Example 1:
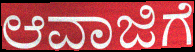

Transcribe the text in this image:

ಆವಾಜಿಗೆ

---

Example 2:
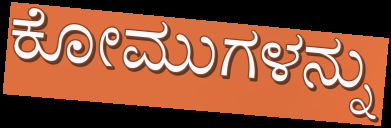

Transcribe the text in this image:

ಕೋಮುಗಳನ್ನು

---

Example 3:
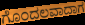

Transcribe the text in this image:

ಗೊಂದಲವಾದಾಗ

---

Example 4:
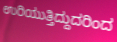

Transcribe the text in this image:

ಉರಿಯುತ್ತಿದ್ದುದರಿಂದ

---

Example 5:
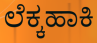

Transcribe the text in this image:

ಲೆಕ್ಕಹಾಕಿ